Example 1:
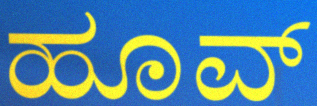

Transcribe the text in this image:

ಹೂವ್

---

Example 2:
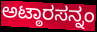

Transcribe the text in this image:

ಅಟ್ಠಾರಸನ್ನಂ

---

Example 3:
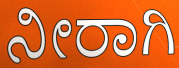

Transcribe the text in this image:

ನೀರಾಗಿ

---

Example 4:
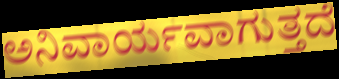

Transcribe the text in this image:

ಅನಿವಾರ್ಯವಾಗುತ್ತದೆ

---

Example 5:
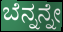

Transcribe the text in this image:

ಬೆನ್ನನ್ನೇ